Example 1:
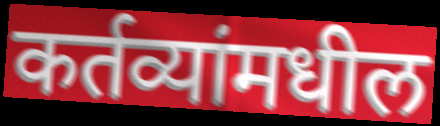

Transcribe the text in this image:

कर्तव्यांमधील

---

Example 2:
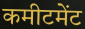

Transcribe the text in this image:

कमीटमेंट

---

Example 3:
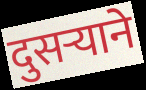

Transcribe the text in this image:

दुसऱ्याने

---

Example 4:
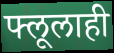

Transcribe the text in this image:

फ्लूलाही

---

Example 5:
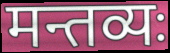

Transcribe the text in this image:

मन्तव्यः